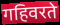
गहिवरते